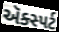
ઍક્સ્પર્ટ